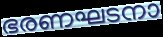
ഭരണഘടനാ